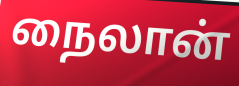
நைலான்